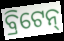
ବ୍ରିଟେନ୍